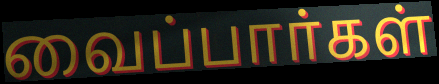
வைப்பார்கள்